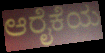
ಆರೈಕೆಯ